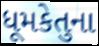
ધૂમકેતુના